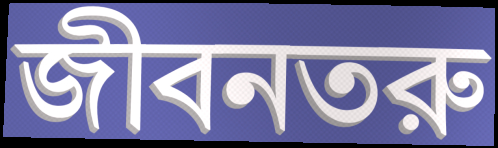
জীবনতরু